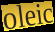
oleic